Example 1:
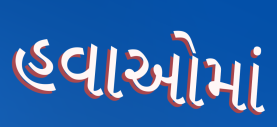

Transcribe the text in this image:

હવાઓમાં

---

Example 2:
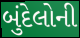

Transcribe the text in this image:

બુંદેલોની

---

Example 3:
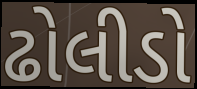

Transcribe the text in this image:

ઢોલીડો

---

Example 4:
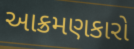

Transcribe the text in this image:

આક્રમણકારો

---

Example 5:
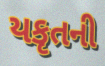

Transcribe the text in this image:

યકૃતની